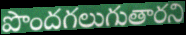
పొందగలుగుతారని